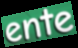
ente